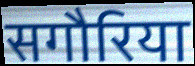
सगौरिया